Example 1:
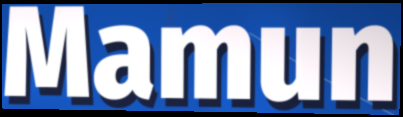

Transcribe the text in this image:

Mamun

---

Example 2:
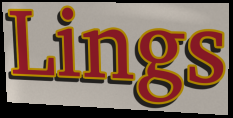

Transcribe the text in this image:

Lings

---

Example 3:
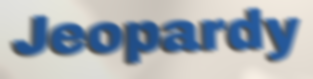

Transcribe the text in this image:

Jeopardy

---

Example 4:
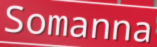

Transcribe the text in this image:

Somanna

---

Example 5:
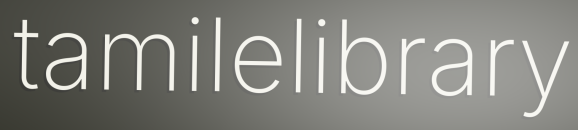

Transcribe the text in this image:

tamilelibrary